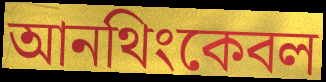
আনথিংকেবল